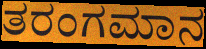
ತರಂಗಮಾನ